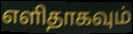
எளிதாகவும்